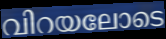
വിറയലോടെ